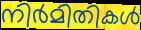
നിർമിതികൾ